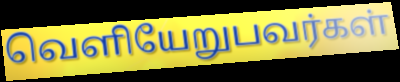
வெளியேறுபவர்கள்